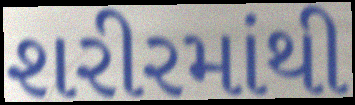
શરીરમાંથી